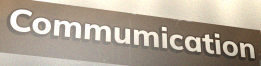
Commumication